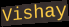
Vishay